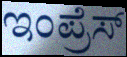
ಇಂಪ್ರೆಸ್